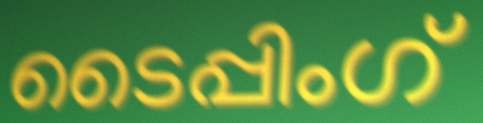
ടൈപ്പിംഗ്